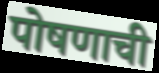
पोषणाची